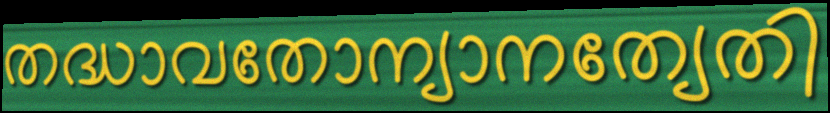
തദ്ധാവതോന്യാനത്യേതി